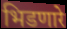
भिडणारे